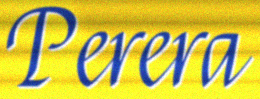
Perera